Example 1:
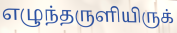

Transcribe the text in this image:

எழுந்தருளியிருக்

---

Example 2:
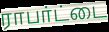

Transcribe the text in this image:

ராபர்ட்டை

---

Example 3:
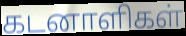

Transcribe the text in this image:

கடனாளிகள்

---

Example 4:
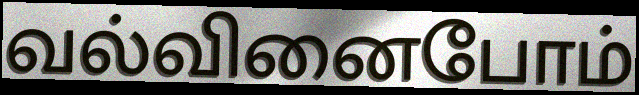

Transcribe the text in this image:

வல்வினைபோம்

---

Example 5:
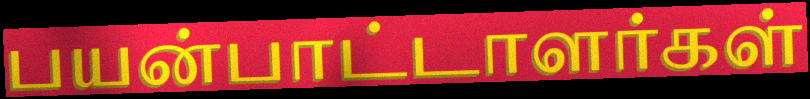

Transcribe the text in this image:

பயன்பாட்டாளர்கள்